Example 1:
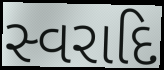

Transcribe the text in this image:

સ્વરાદિ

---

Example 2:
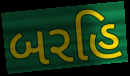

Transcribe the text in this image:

બરહિ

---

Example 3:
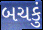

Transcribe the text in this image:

બચકું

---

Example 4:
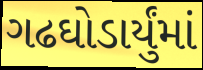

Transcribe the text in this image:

ગઢઘોડાર્યુંમાં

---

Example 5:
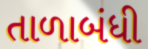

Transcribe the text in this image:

તાળાબંધી